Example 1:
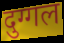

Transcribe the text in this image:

दुग्गल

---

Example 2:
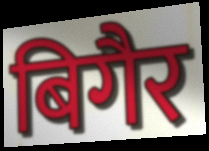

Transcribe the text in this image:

बिगैर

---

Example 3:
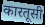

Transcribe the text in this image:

कारतूसी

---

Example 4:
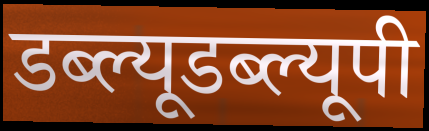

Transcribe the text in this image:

डब्ल्यूडब्ल्यूपी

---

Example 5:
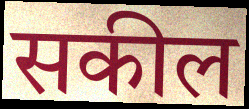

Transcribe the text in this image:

सकील